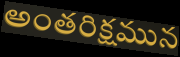
అంతరిక్షమున